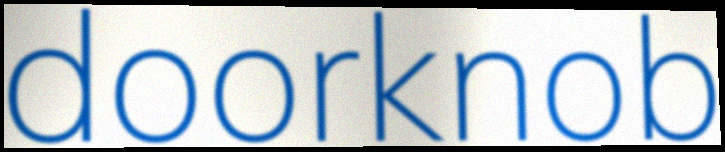
doorknob